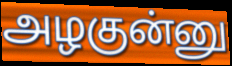
அழகுன்னு